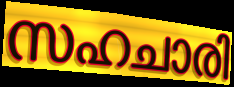
സഹചാരി